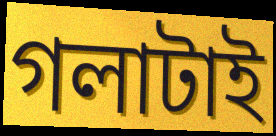
গলাটাই